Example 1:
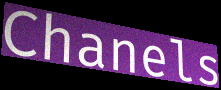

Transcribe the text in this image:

Chanels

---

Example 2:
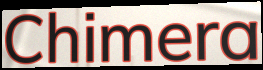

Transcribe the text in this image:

Chimera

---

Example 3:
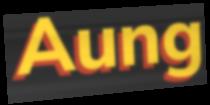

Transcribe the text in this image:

Aung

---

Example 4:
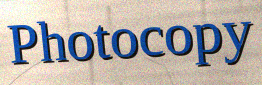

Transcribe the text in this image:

Photocopy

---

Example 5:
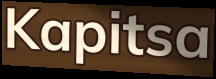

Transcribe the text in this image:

Kapitsa